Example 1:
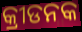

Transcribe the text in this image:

କ୍ରୀଡନକ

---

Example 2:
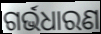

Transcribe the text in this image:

ଗର୍ଭଧାରଣ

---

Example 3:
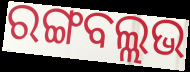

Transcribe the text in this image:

ରଙ୍ଗବଲ୍ଲଭ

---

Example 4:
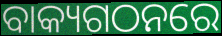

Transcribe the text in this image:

ବାକ୍ୟଗଠନରେ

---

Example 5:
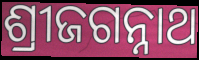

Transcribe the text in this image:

ଶ୍ରୀଜଗନ୍ନାଥ